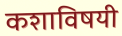
कशाविषयी